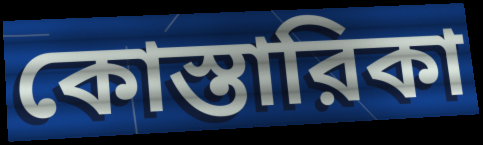
কোস্তারিকা